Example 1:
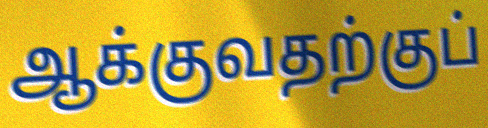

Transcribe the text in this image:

ஆக்குவதற்குப்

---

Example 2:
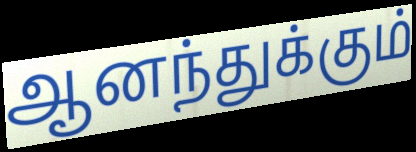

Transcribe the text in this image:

ஆனந்துக்கும்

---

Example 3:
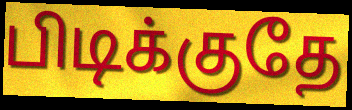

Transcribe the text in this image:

பிடிக்குதே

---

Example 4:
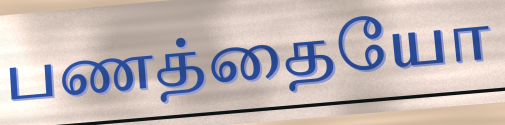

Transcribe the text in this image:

பணத்தையோ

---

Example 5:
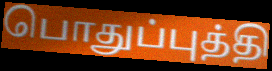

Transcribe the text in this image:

பொதுப்புத்தி